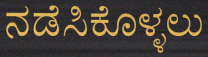
ನಡೆಸಿಕೊಳ್ಳಲು